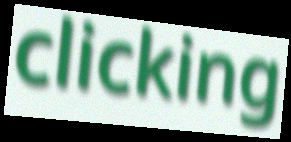
clicking